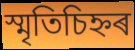
স্মৃতিচিহ্নৰ